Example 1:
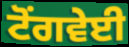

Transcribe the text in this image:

ਟੋਂਗਵੇਈ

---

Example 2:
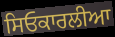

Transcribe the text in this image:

ਸਿਓਕਾਰਲੀਆ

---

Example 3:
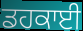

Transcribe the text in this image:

ਡਹਕਾਈ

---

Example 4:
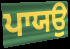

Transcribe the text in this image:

ਪਾਯਉ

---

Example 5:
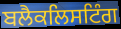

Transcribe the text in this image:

ਬਲੈਕਲਿਸਟਿੰਗ